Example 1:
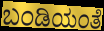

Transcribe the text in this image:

ಬಂಡಿಯಂತೆ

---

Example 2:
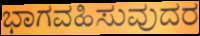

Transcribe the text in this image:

ಭಾಗವಹಿಸುವುದರ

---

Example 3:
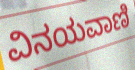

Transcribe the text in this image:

ವಿನಯವಾಣಿ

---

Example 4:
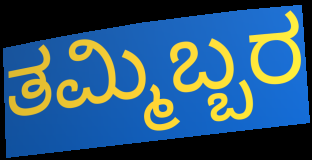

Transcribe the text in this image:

ತಮ್ಮಿಬ್ಬರ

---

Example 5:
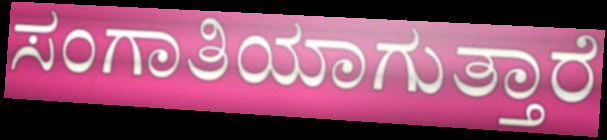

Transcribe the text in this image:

ಸಂಗಾತಿಯಾಗುತ್ತಾರೆ